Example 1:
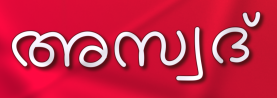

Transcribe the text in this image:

അസ്വദ്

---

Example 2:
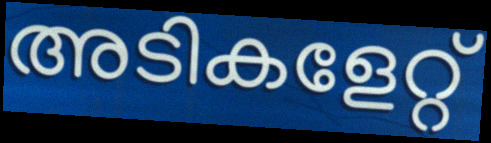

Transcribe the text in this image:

അടികളേറ്റ്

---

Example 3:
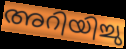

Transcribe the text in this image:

അറിയിച്ചു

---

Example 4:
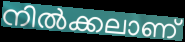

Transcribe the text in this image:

നിൽക്കലാണ്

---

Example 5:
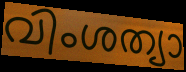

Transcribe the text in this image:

വിംശത്യാ